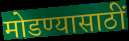
मोडण्यासाठीं